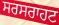
ਸਰਸਰਾਹਟ